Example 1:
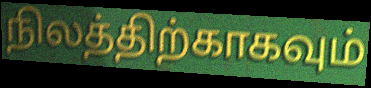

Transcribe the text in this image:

நிலத்திற்காகவும்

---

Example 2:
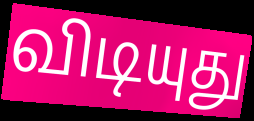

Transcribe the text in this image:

விடியுது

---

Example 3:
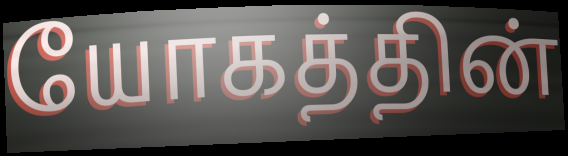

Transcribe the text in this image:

யோகத்தின்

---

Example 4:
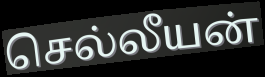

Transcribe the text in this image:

செல்லீயன்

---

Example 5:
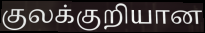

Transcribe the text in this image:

குலக்குறியான